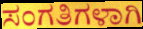
ಸಂಗತಿಗಳಾಗಿ